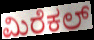
ಮಿರೆಕಲ್